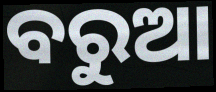
ବରୁଆ